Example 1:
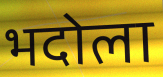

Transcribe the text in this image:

भदोला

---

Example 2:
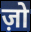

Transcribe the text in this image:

ज़ो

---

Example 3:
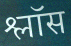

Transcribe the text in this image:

श्लॉस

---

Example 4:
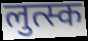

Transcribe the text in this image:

लुत्स्क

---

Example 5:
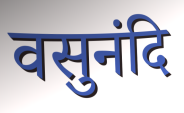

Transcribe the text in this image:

वसुनंदि